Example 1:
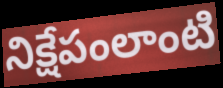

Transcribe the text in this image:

నిక్షేపంలాంటి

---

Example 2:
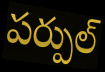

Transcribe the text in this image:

పర్పుల్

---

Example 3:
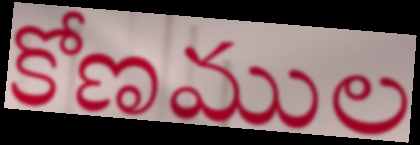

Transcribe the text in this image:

కోణముల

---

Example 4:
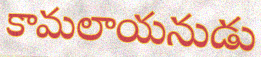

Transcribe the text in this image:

కామలాయనుడు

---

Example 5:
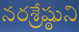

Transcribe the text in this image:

నరశ్రేష్ఠుని